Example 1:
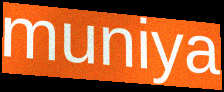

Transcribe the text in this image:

muniya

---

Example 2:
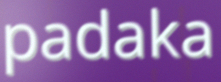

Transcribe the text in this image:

padaka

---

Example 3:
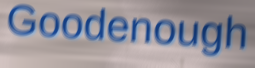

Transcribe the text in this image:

Goodenough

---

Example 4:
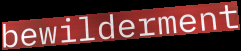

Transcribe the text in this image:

bewilderment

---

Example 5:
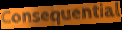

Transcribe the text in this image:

Consequential